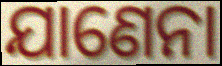
ଯାଣେନା